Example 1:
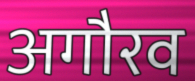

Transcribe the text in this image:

अगौरव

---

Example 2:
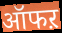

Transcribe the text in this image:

ऑफऱ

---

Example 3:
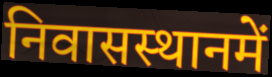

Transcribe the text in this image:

निवासस्थानमें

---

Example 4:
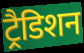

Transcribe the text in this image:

ट्रैडिशन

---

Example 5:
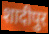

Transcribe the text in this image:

शादीपुर